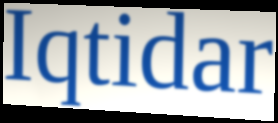
Iqtidar